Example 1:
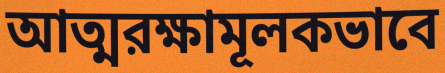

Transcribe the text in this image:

আত্মরক্ষামূলকভাবে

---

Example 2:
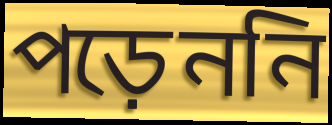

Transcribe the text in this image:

পড়েননি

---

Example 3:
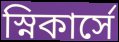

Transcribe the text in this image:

স্নিকার্সে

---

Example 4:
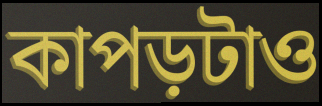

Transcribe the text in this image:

কাপড়টাও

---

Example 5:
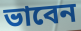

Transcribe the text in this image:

ভাবেন